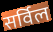
सर्विल